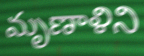
మృణాళిని